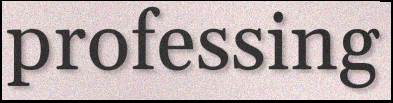
professing